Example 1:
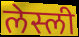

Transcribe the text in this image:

लेस्ली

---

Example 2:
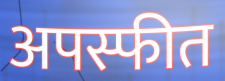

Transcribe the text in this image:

अपस्फीत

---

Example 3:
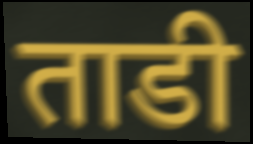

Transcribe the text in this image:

ताडी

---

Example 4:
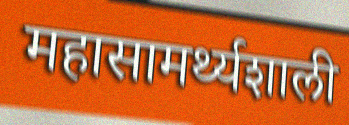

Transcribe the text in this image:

महासामर्थ्यशाली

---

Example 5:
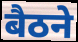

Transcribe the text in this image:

बैठने